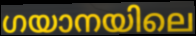
ഗയാനയിലെ